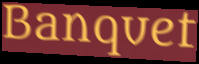
Banquet